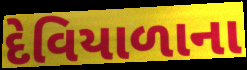
દેવિયાળાના